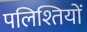
पलिश्तियों